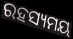
ରହସ୍ୟମୟ